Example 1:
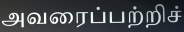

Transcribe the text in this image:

அவரைப்பற்றிச்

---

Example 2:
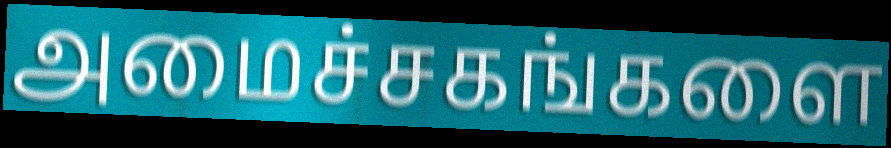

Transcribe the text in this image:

அமைச்சகங்களை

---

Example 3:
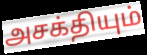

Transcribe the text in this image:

அசக்தியும்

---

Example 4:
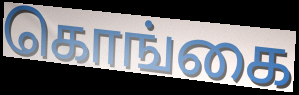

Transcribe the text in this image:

கொங்கை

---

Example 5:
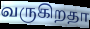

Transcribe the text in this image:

வருகிறதா